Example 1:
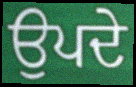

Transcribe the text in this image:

ਉਪਦੇ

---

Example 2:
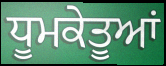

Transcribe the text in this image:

ਧੂਮਕੇਤੂਆਂ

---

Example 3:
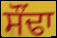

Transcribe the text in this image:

ਸੌਂਢਾ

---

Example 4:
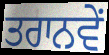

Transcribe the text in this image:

ਤਰਾਨਵੇਂ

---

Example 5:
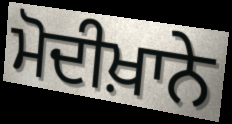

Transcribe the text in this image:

ਮੋਦੀਖ਼ਾਨੇ